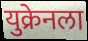
युक्रेनला